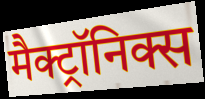
मैक्ट्रॉनिक्स